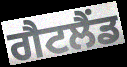
ਗੈਟਲੈਂਡ